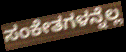
ಸಂಕೇತಗಳನ್ನೆಲ್ಲ